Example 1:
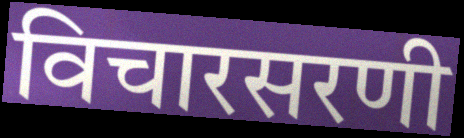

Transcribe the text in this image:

विचारसरणी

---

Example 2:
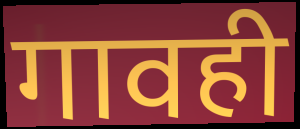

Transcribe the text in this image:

गावही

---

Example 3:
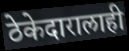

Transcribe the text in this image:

ठेकेदारालाही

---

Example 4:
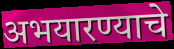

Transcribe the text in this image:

अभयारण्याचे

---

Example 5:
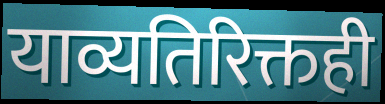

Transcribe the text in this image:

याव्यतिरिक्तही